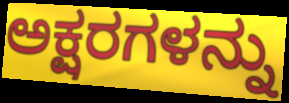
ಅಕ್ಷರಗಳನ್ನು